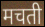
मचती